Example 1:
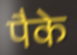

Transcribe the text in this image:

पैके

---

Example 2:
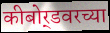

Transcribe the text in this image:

कीबोर्डवरच्या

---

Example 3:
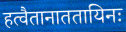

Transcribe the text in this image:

हत्वैतानाततायिनः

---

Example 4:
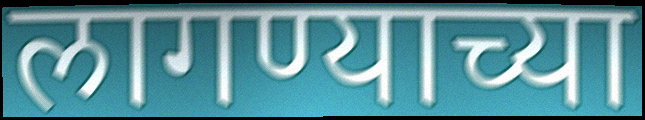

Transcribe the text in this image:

लागण्याच्या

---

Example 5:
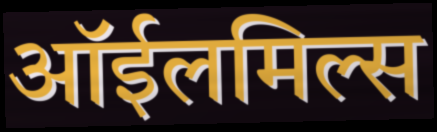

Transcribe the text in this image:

ऑईलमिल्स